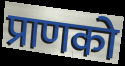
प्राणको